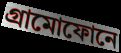
গ্রামোফোনে